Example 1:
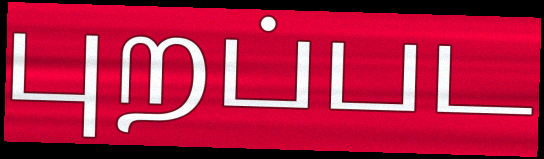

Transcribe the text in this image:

புறப்பட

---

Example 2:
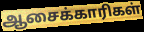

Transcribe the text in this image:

ஆசைக்காரிகள்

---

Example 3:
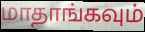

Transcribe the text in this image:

மாதாங்கவும்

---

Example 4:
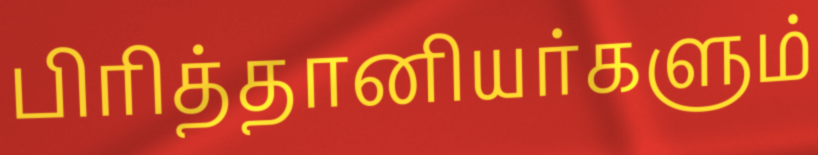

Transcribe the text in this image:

பிரித்தானியர்களும்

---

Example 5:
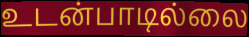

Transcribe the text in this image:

உடன்பாடில்லை